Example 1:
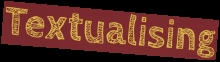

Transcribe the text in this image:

Textualising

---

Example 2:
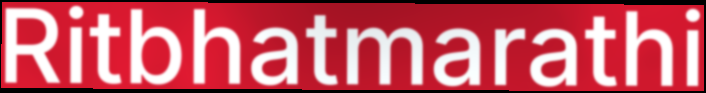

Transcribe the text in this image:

Ritbhatmarathi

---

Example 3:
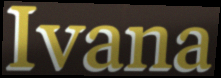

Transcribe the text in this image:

Ivana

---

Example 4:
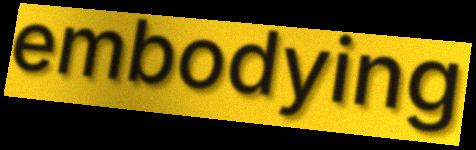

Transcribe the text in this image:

embodying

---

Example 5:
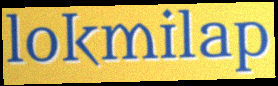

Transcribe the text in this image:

lokmilap